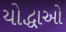
યોદ્ધાઓ